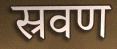
स्रवण